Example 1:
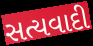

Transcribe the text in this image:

સત્યવાદી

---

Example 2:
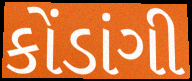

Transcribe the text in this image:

કોંડાંગી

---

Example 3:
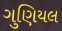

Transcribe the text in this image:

ગુણિયલ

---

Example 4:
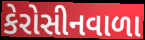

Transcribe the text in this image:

કેરોસીનવાળા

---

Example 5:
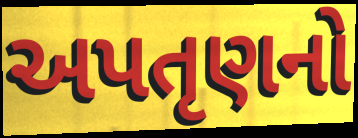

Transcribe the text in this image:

અપતૃણનો